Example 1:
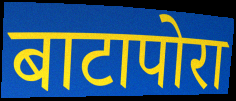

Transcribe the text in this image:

बाटापोरा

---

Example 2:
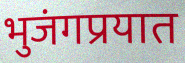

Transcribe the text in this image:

भुजंगप्रयात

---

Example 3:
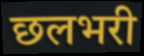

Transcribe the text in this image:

छलभरी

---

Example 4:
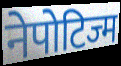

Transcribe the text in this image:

नेपोटिज्‍म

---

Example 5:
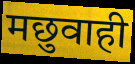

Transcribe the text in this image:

मछुवाही